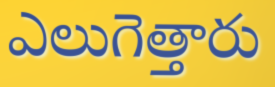
ఎలుగెత్తారు